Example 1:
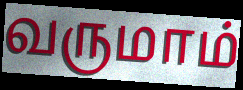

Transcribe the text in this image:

வருமாம்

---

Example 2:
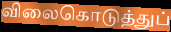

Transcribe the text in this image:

விலைகொடுத்துப்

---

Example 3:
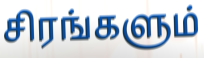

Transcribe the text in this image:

சிரங்களும்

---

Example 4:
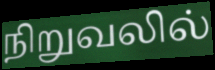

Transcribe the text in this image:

நிறுவலில்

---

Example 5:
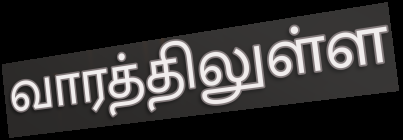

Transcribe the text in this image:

வாரத்திலுள்ள